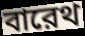
বারেথ